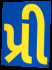
પ્રી